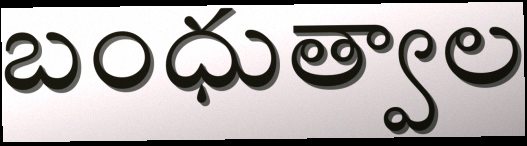
బంధుత్వాల